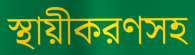
স্থায়ীকরণসহ